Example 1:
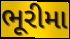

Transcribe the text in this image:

ભૂરીમા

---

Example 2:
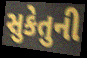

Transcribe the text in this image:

સુકેતુની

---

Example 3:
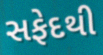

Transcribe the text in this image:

સફેદથી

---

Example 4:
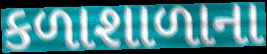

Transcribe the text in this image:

કળાશાળાના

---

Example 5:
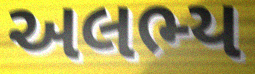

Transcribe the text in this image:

અલભ્ય